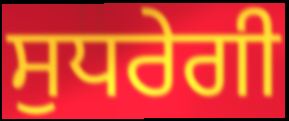
ਸੁਧਰੇਗੀ